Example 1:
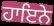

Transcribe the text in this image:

ਹਾਇਨੇ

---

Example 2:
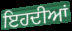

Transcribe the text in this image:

ਇਹਦੀਆਂ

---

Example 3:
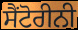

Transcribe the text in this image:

ਸੈਂਟੋਰੀਨੀ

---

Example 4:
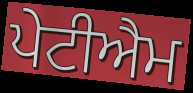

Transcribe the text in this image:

ਪੇਟੀਐਮ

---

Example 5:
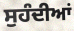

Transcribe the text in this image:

ਸੁਹੰਦੀਆਂ